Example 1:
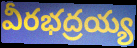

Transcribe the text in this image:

వీరభద్రయ్య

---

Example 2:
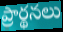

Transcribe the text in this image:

ప్రార్థనలు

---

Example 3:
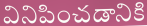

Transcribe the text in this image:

వినిపించడానికి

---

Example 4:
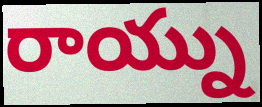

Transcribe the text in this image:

రాయ్ను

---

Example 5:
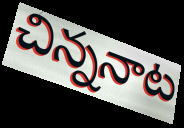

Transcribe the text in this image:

చిన్ననాట